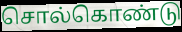
சொல்கொண்டு